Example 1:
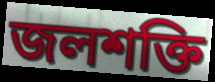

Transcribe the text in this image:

জলশক্তি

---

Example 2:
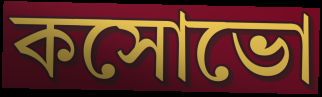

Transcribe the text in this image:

কসোভো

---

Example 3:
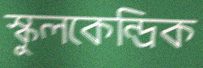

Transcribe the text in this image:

স্কুলকেন্দ্রিক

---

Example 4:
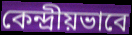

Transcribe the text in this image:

কেন্দ্রীয়ভাবে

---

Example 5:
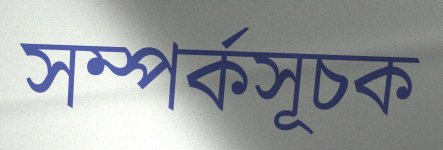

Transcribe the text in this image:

সম্পর্কসূচক